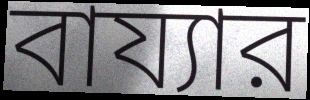
বায্যার